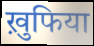
ख़ुफिया